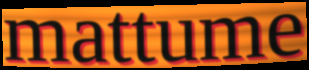
mattume